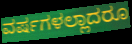
ವರ್ಷಗಳಲ್ಲಾದರೂ